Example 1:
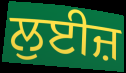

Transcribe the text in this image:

ਲੁਈਜ਼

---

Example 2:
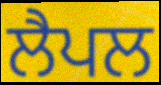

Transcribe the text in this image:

ਲੈਪਲ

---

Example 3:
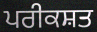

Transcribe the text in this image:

ਪਰੀਕਸ਼ਤ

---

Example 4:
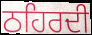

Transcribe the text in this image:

ਠਹਿਰਦੀ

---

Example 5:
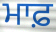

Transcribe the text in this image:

ਮਾਫ਼